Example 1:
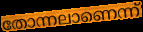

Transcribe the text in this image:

തോന്നലാണെന്ന്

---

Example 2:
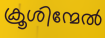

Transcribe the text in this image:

ക്രൂശിന്മേൽ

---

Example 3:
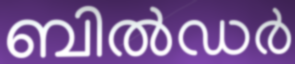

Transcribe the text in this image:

ബിൽഡർ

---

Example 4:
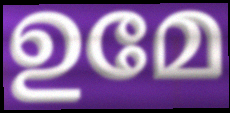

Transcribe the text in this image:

ഉമേ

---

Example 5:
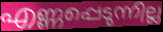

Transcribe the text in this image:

എണ്ണപ്പെടുന്നില്ല